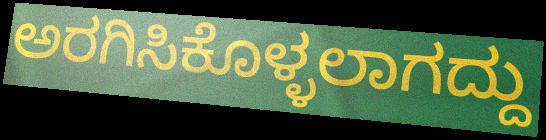
ಅರಗಿಸಿಕೊಳ್ಳಲಾಗದ್ದು